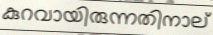
കുറവായിരുന്നതിനാല്